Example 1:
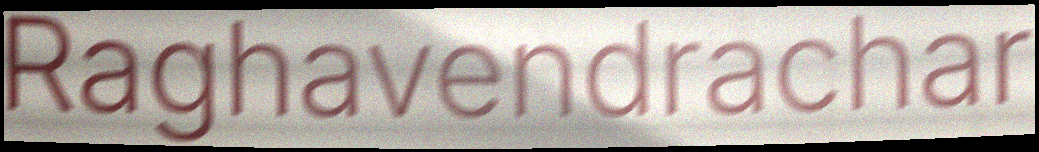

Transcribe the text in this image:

Raghavendrachar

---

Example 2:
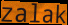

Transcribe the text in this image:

zalak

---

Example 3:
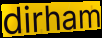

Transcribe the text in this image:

dirham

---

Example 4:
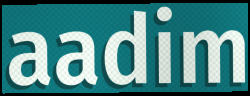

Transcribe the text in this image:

aadim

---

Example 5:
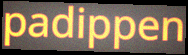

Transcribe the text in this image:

padippen